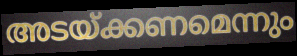
അടയ്ക്കണമെന്നും